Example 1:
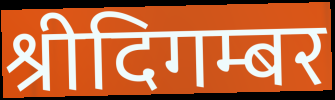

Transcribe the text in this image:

श्रीदिगम्बर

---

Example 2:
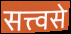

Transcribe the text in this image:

सत्त्वसे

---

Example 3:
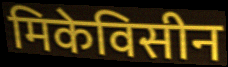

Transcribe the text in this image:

मिकेविसीन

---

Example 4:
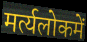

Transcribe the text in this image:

मर्त्यलोकमें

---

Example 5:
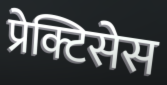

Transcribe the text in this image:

प्रेक्टिसेस